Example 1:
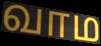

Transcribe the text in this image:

வாம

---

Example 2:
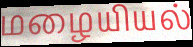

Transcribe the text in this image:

மழையியல்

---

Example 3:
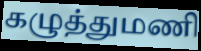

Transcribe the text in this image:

கழுத்துமணி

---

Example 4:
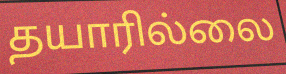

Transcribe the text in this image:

தயாரில்லை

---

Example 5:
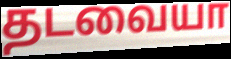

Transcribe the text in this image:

தடவையா